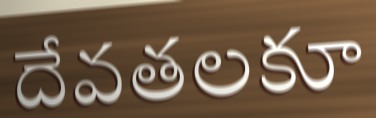
దేవతలకూ